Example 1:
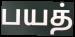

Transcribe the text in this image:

பயத்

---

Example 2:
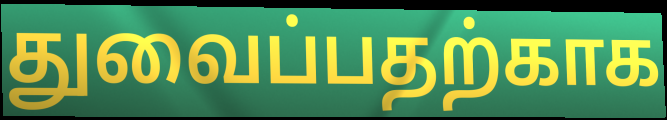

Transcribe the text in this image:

துவைப்பதற்காக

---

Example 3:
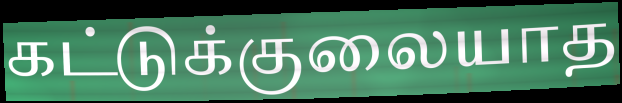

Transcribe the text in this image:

கட்டுக்குலையாத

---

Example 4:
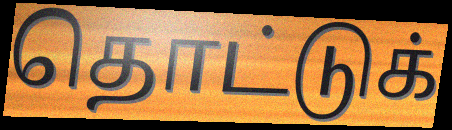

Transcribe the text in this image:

தொட்டுக்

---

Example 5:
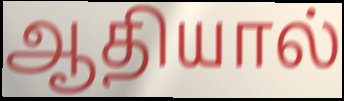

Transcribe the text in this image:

ஆதியால்